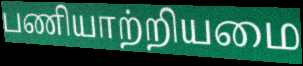
பணியாற்றியமை